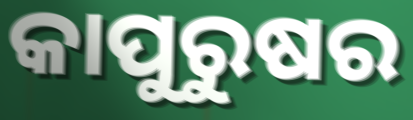
କାପୁରୁଷର